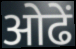
ओढें